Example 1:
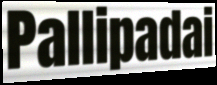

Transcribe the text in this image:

Pallipadai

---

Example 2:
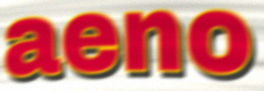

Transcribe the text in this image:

aeno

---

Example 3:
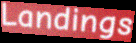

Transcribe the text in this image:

Landings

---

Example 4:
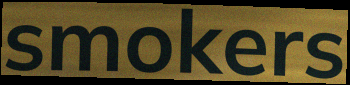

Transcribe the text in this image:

smokers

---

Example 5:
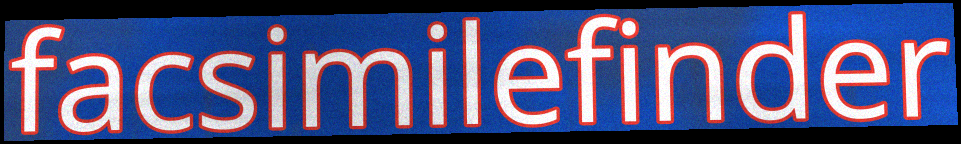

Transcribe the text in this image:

facsimilefinder